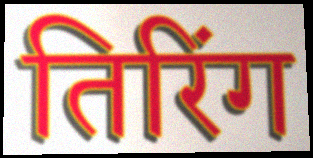
तिरिंग